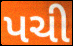
પચી